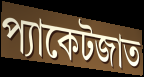
প্যাকেটজাত